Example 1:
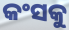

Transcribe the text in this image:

କଂସକୁ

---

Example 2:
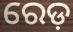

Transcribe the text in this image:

ରେଡ଼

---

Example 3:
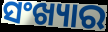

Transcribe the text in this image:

ସଂଖ୍ୟାର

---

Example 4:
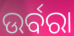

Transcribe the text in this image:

ଉର୍ବରା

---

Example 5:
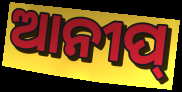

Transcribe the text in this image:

ଆନୀପ୍